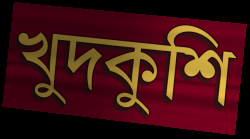
খুদকুশি